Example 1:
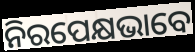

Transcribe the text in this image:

ନିରପେକ୍ଷଭାବେ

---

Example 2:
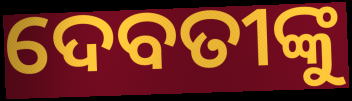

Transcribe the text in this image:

ଦେବତୀଙ୍କୁ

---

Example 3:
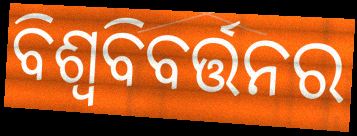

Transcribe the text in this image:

ବିଶ୍ଵବିବର୍ତ୍ତନର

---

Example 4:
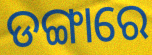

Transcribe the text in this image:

ଡଙ୍ଗାରେ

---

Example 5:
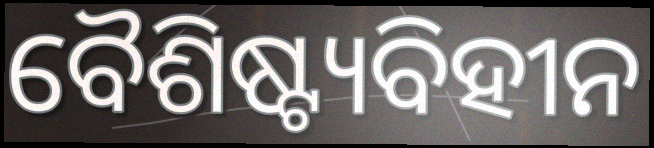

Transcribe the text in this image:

ବୈଶିଷ୍ଟ୍ୟବିହୀନ